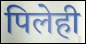
पिलेही